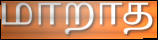
மாறாத